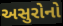
અસુરોનો